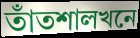
তাঁতশালখনে